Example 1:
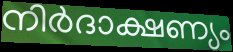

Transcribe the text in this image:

നിർദാക്ഷണ്യം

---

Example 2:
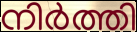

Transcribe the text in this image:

നിർത്തി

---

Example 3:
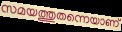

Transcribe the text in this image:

സമയത്തുതന്നെയാണ്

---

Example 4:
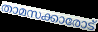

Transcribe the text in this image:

താമസക്കാരോട്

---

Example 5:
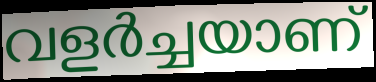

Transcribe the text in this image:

വളർച്ചയാണ്